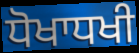
ਧੋਖਾਧਖੀ